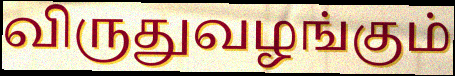
விருதுவழங்கும்